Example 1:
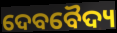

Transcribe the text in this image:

ଦେବବୈଦ୍ୟ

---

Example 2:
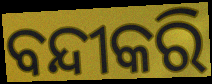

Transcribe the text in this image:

ବନ୍ଦୀକରି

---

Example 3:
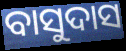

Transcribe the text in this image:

ବାସୁଦାସ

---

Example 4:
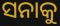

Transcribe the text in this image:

ସନାକୁ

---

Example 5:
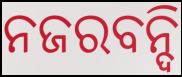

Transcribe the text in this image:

ନଜରବନ୍ଦି